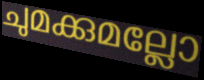
ചുമക്കുമല്ലോ